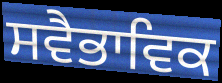
ਸਵੈਭਾਵਿਕ